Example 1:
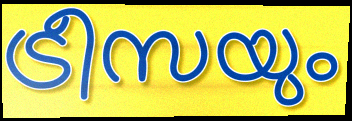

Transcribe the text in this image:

ട്രീസയും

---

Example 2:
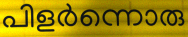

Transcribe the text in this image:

പിളർന്നൊരു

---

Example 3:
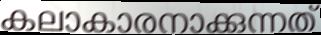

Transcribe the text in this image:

കലാകാരനാക്കുന്നത്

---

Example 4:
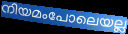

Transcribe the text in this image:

നിയമംപോലെയല്ല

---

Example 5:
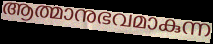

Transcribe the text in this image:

ആത്മാനുഭവമാകുന്ന